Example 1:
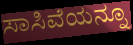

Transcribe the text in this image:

ಸಾಸಿವೆಯನ್ನೂ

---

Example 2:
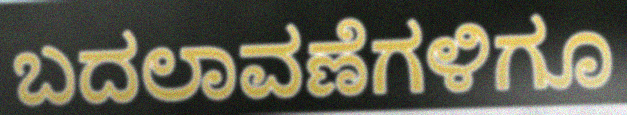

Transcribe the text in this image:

ಬದಲಾವಣೆಗಳಿಗೂ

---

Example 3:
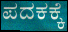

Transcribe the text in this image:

ಪದಕಕ್ಕೆ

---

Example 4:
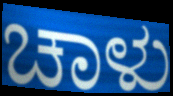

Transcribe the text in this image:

ಚಾಳು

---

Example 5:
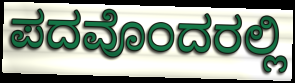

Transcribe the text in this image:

ಪದವೊಂದರಲ್ಲಿ